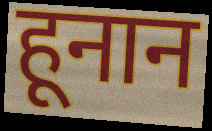
हूनान